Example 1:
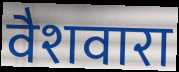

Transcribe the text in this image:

वैशवारा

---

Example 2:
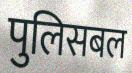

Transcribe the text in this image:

पुलिसबल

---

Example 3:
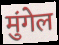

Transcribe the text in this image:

मुंगेल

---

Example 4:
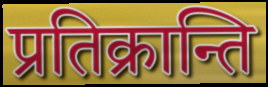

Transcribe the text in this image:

प्रतिक्रान्ति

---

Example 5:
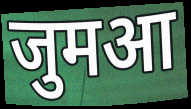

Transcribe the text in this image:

जुमआ